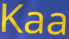
Kaa